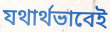
যথার্থভাবেই